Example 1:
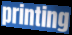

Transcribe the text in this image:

printing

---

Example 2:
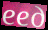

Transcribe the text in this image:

eed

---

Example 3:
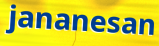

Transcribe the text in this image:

jananesan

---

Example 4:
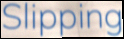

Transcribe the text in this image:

Slipping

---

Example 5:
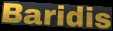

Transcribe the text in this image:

Baridis